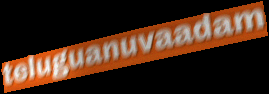
teluguanuvaadam